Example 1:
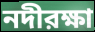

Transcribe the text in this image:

নদীরক্ষা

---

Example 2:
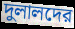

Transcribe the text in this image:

দুলালদের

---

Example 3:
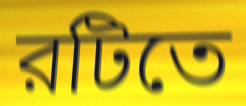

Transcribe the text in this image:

রটিতে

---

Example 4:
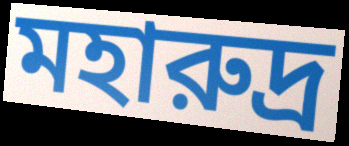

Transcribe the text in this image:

মহারুদ্র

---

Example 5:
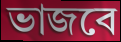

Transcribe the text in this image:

ভাজবে